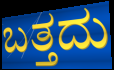
ಬತ್ತದು